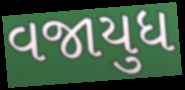
વજાયુધ